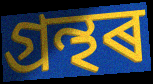
গ্ৰন্থৰ